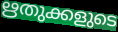
ഋതുക്കളുടെ